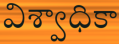
విశ్వాధికా